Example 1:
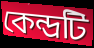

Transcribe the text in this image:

কেন্দ্রটি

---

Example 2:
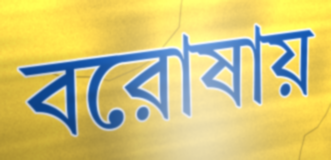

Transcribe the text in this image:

বরোষায়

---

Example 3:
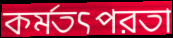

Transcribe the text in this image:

কর্মতৎপরতা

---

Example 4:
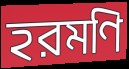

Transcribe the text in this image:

হরমণি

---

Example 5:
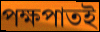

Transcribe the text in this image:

পক্ষপাতই